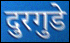
दुरगुडे